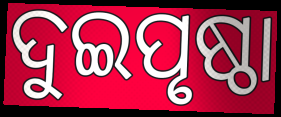
ଦୁଇପୃଷ୍ଠା